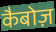
कैबोज़